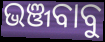
ଭଞ୍ଜବାବୁ